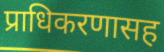
प्राधिकरणासह